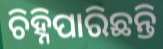
ଚିହ୍ନିପାରିଛନ୍ତି